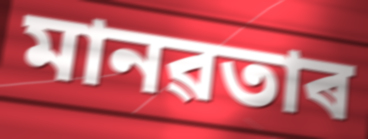
মানৱতাৰ